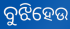
ବୁଝିହେଉ